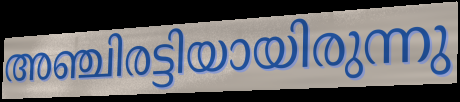
അഞ്ചിരട്ടിയായിരുന്നു